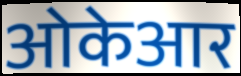
ओकेआर